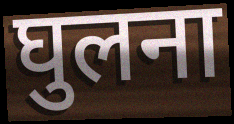
घुलना